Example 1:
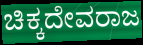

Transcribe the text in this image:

ಚಿಕ್ಕದೇವರಾಜ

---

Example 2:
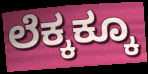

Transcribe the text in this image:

ಲೆಕ್ಕಕ್ಕೂ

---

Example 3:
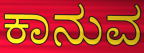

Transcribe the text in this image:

ಕಾನುವ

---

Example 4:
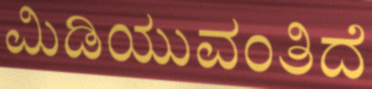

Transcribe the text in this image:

ಮಿಡಿಯುವಂತಿದೆ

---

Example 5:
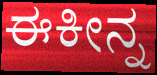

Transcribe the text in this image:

ಈಕೀನ್ನ